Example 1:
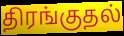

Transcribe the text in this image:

திரங்குதல்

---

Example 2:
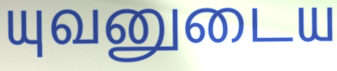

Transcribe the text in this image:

யுவனுடைய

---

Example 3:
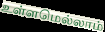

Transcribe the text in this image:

உள்ளமெல்லாம்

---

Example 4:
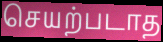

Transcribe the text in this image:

செயற்படாத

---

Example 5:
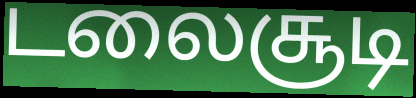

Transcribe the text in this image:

டலைசூடி